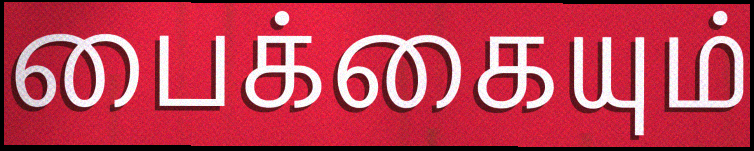
பைக்கையும்